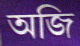
অজি